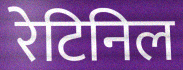
रेटिनिल